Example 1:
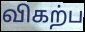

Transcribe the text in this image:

விகற்ப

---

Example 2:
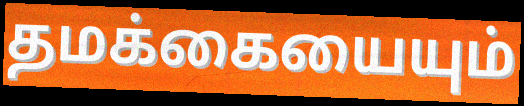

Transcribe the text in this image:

தமக்கையையும்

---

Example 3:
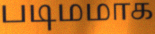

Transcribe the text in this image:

படிமமாக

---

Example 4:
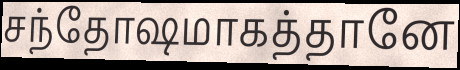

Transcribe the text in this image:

சந்தோஷமாகத்தானே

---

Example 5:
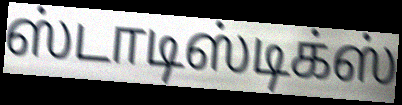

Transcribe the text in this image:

ஸ்டாடிஸ்டிக்ஸ்